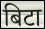
बिटा